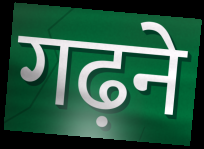
गढ़ने